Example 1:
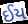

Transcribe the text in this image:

ઈય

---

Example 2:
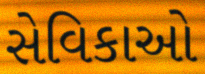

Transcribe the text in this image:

સેવિકાઓ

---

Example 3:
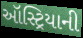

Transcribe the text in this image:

ઑસ્ટ્રિયાની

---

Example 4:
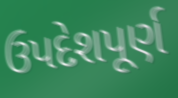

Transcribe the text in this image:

ઉપદેશપૂર્ણ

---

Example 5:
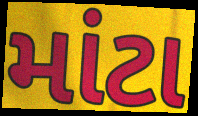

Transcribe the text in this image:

માંટા